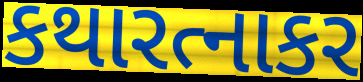
કથારત્નાકર